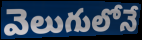
వెలుగులోనే